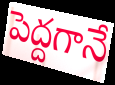
పెద్దగానే